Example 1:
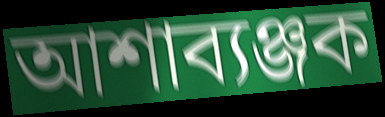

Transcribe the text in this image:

আশাব্যঞ্জক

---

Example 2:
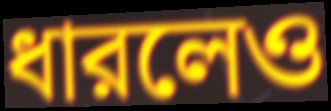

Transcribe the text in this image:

ধারলেও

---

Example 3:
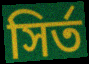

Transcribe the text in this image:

সির্ত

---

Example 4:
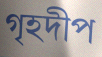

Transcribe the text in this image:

গৃহদীপ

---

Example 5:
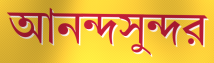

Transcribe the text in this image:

আনন্দসুন্দর